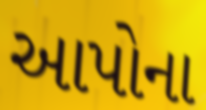
આપોના